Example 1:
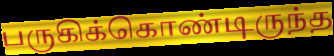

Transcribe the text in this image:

பருகிக்கொண்டிருந்த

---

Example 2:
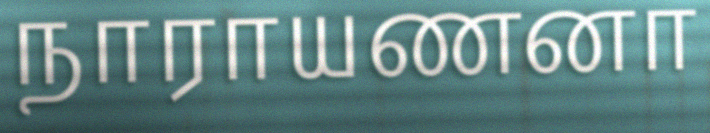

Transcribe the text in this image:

நாராயணனா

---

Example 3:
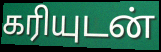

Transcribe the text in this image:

கரியுடன்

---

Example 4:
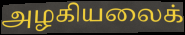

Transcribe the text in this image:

அழகியலைக்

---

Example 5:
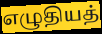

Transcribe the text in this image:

எழுதியத்